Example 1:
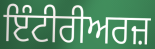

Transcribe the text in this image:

ਇੰਟੀਰੀਅਰਜ਼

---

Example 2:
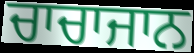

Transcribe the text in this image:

ਚਾਚਾਜਾਨ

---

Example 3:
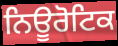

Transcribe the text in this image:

ਨਿਊਰੋਟਿਕ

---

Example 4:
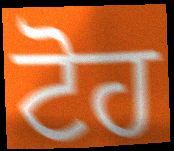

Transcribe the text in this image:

ਟੋਹ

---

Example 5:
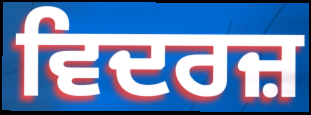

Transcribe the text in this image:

ਵਿਦਰਜ਼